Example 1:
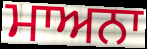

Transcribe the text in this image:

ਮਾਅਨਾ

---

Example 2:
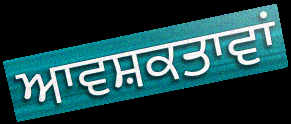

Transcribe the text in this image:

ਆਵਸ਼ਕਤਾਵਾਂ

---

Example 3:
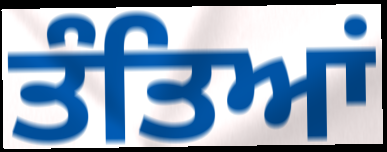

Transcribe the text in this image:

ਤੰਤਿਆਂ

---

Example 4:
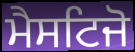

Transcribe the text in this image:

ਮੈਸਟਿਜੋ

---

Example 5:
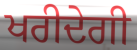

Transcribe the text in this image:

ਖਰੀਦੇਗੀ